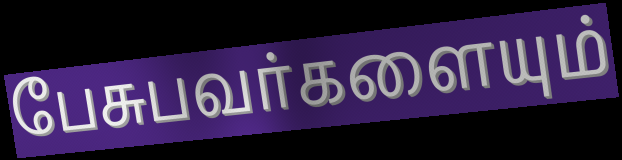
பேசுபவர்களையும்